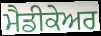
ਮੈਡੀਕੇਅਰ